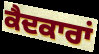
ਕੈਦਕਾਰਾਂ